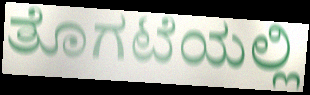
ತೊಗಟೆಯಲ್ಲಿ